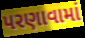
પરણાવામાં